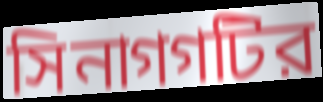
সিনাগগটির